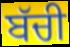
ਬੱਚੀ